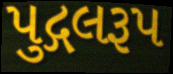
પુદ્ગલરૂપ